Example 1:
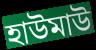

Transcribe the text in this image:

হাউমাউ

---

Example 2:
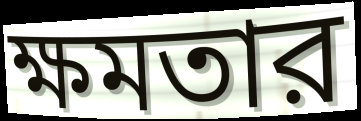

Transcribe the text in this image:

ক্ষমতার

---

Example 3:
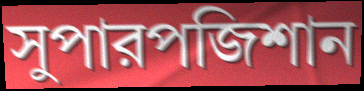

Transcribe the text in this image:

সুপারপজিশান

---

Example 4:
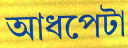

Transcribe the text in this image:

আধপেটা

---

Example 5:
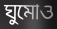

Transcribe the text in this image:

ঘুমোও